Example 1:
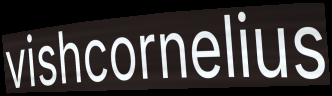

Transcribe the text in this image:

vishcornelius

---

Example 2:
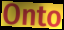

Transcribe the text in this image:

Onto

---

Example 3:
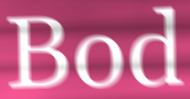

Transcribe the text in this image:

Bod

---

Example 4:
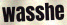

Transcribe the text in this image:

wasshe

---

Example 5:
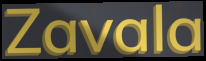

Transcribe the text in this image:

Zavala